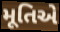
મૂતિએ